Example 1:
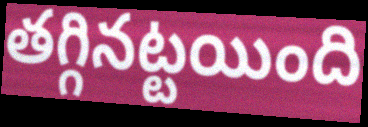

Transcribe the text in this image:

తగ్గినట్టయింది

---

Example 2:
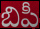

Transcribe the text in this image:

బిపీ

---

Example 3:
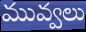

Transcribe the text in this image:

మువ్వలు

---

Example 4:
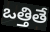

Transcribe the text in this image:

ఒత్తితే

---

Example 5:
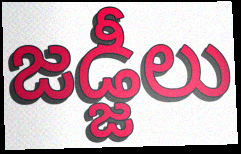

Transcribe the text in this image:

జడ్జీలు